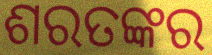
ଶରତଙ୍କର